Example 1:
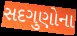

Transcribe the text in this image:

સદગુણોના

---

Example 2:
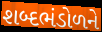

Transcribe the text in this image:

શબ્દભંડોળને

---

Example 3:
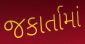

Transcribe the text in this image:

જકાર્તામાં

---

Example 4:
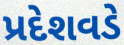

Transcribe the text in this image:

પ્રદેશવડે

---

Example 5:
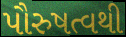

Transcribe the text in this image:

પૌરુષત્વથી